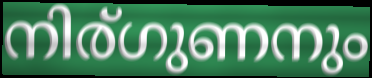
നിര്ഗുണനും